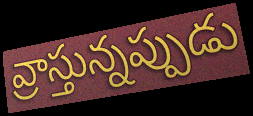
వ్రాస్తున్నప్పుడు